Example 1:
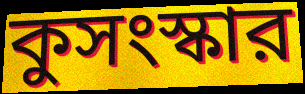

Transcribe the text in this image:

কুসংস্কার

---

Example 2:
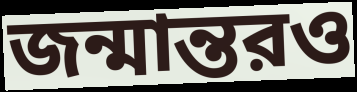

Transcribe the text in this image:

জন্মান্তরও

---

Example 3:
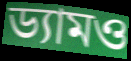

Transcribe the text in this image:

ড্যামও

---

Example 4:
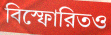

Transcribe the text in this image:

বিস্ফোরিতও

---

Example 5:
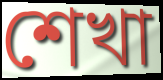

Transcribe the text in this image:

শেখা